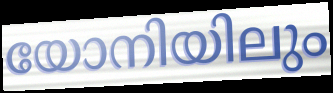
യോനിയിലും